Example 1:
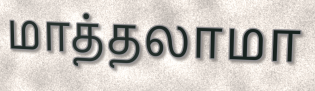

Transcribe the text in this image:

மாத்தலாமா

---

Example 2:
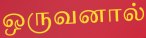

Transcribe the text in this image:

ஒருவனால்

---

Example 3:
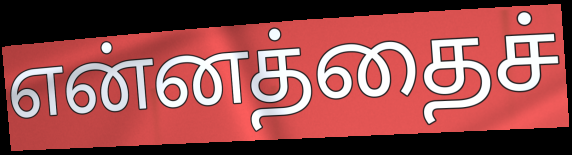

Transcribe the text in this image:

என்னத்தைச்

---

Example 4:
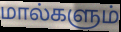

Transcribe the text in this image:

மால்களும்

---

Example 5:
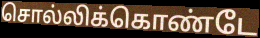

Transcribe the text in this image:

சொல்லிக்கொண்டே